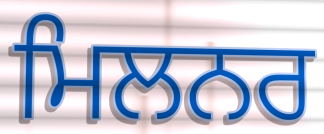
ਮਿਲਨਰ